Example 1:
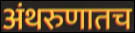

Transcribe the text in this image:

अंथरुणातच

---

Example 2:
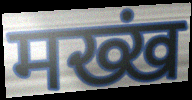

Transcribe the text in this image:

मख्खं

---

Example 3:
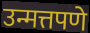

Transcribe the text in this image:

उन्मत्तपणे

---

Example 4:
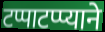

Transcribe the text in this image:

टप्पाटप्प्याने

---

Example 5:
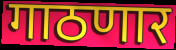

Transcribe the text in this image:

गाठणार